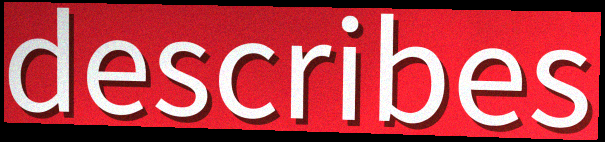
describes